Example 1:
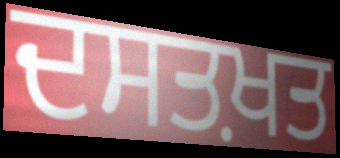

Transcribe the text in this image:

ਦਸਤ਼ਖਤ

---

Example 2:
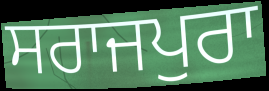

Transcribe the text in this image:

ਸਰਾਜਪੁਰਾ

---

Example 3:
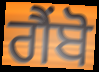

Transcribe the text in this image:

ਗੈਂਬੋ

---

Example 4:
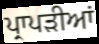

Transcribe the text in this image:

ਪ੍ਰਾਪੜੀਆਂ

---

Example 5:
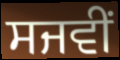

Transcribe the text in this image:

ਸਜਵੀਂ